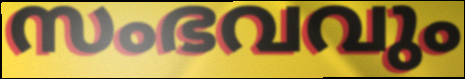
സംഭവവും